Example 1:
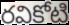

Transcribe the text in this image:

రవికోటి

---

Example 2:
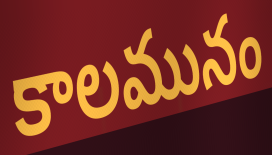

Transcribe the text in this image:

కాలమునం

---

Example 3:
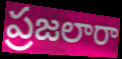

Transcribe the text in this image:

ప్రజలారా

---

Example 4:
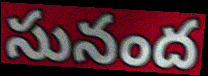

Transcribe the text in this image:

సునంద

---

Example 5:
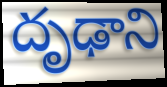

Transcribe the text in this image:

దృఢాని